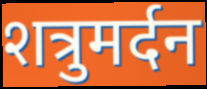
शत्रुमर्दन